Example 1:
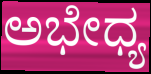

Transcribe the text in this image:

ಅಭೇಧ್ಯ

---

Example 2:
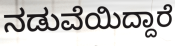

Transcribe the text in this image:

ನಡುವೆಯಿದ್ದಾರೆ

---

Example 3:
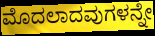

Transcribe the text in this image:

ಮೊದಲಾದವುಗಳನ್ನೇ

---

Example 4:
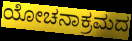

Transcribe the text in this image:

ಯೋಚನಾಕ್ರಮದ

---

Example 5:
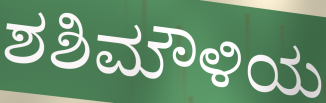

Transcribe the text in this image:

ಶಶಿಮೌಳಿಯ